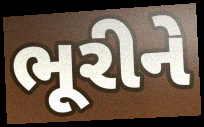
ભૂરીને